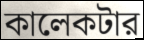
কালেকটার